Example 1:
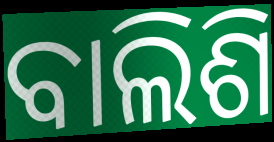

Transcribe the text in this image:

ବାଲିଶି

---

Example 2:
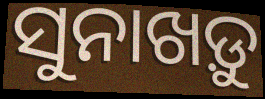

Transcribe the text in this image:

ସୁନାଖଡ଼ୁ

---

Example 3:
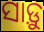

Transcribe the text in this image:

ସାଡ଼ୁ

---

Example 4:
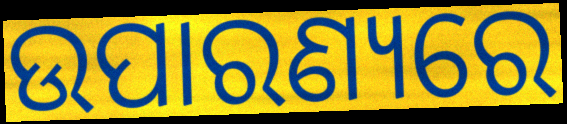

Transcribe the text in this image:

ଉପାରଣ୍ୟରେ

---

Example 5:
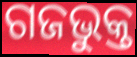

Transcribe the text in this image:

ଗଜଭୁକ୍ତ